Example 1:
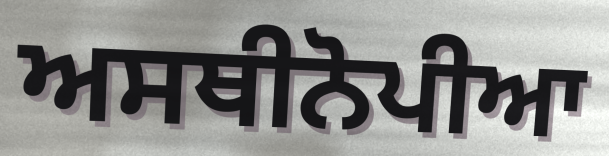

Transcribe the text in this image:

ਅਸਥੀਨੋਪੀਆ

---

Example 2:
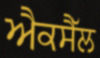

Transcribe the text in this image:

ਐਕਸੈੱਲ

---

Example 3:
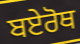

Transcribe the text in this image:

ਬਏਰੋਥ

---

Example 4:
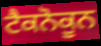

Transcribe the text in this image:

ਟੈਕਨੋਕੂਨ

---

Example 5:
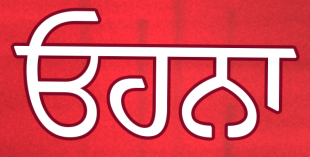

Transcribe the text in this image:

ਓਹਨਾ